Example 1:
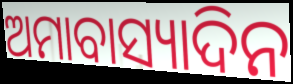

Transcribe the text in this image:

ଅମାବାସ୍ୟାଦିନ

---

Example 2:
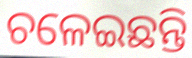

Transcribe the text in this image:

ଚଳେଇଛନ୍ତି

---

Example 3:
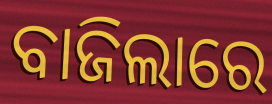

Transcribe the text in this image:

ବାଜିଲାରେ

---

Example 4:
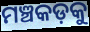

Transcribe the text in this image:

ମଞ୍ଚକଡ଼କୁ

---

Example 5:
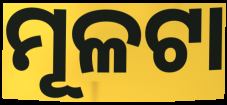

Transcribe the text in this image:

ମୂଳଟା